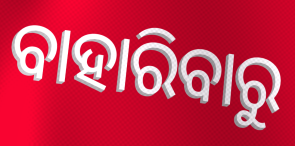
ବାହାରିବାରୁ